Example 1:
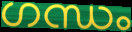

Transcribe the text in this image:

ഗന്ധം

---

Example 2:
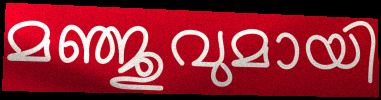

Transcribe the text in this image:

മഞ്ജുവുമായി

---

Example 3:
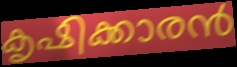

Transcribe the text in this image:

കൃഷിക്കാരൻ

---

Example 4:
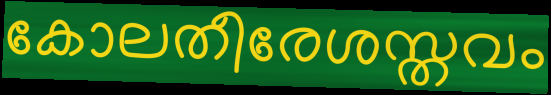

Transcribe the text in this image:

കോലതീരേശസ്തവം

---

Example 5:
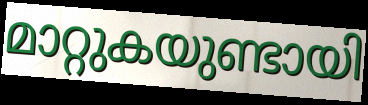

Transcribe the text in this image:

മാറ്റുകയുണ്ടായി